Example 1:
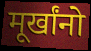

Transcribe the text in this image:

मूर्खांनो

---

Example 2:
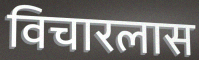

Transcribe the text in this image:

विचारलास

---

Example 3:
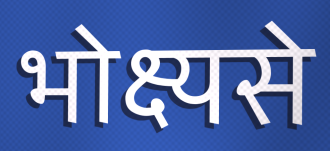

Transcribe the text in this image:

भोक्ष्यसे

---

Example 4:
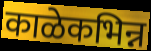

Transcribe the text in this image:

काळेकभिन्न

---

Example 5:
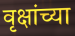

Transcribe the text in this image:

वृक्षांच्या